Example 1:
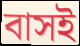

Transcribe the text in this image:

বাসই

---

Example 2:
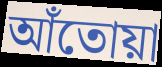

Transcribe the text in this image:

আঁতোয়া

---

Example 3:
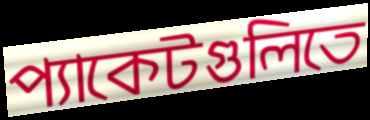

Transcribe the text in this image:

প্যাকেটগুলিতে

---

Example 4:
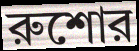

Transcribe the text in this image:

রুশোর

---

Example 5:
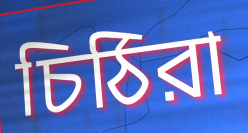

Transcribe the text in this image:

চিঠিরা